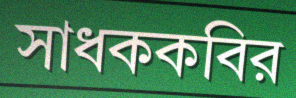
সাধককবির